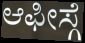
ಆಫೀಸ್ಗೆ